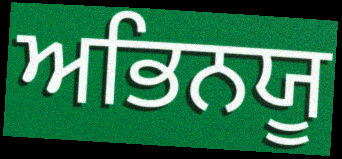
ਅਭਿਨਯੂ